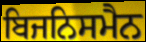
ਬਿਜਨਿਸਮੈਨ